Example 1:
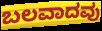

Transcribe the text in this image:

ಬಲವಾದವು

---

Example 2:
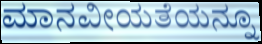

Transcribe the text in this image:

ಮಾನವೀಯತೆಯನ್ನೂ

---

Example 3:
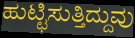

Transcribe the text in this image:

ಹುಟ್ಟಿಸುತ್ತಿದ್ದುವು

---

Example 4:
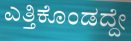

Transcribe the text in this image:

ಎತ್ತಿಕೊಂಡದ್ದೇ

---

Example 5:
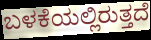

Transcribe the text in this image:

ಬಳಕೆಯಲ್ಲಿರುತ್ತದೆ